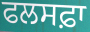
ਫਲਸਫ਼ਾ